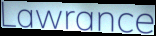
Lawrance